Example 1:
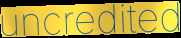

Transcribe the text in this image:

uncredited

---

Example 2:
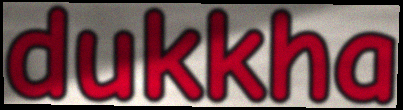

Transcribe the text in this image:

dukkha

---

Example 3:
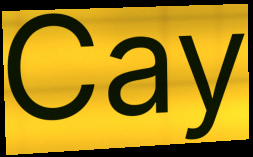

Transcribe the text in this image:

Cay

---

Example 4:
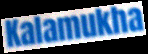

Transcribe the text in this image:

Kalamukha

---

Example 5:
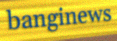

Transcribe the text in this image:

banginews